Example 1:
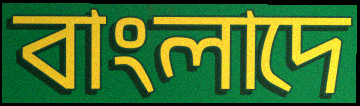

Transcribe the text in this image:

বাংলাদে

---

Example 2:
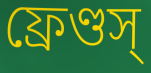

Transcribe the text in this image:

ফ্রেণ্ডস্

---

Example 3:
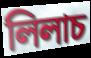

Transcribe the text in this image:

লিলাচ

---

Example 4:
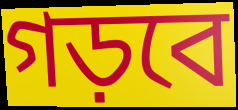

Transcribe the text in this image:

গড়বে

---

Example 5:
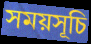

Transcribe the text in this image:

সময়সূচি